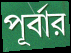
পূর্বার